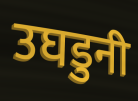
उघडुनी